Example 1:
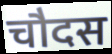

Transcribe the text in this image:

चौदस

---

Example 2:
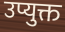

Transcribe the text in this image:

उप्युक्त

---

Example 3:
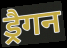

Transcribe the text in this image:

ड्रैगन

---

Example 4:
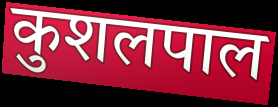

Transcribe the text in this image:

कुशलपाल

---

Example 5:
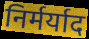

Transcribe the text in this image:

निर्मर्याद